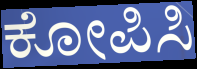
ಕೋಪಿಸಿ